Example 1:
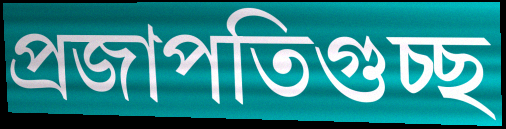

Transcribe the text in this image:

প্রজাপতিগুচ্ছ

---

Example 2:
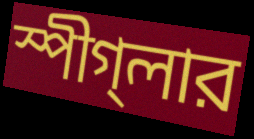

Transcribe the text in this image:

স্পীগ্‌লার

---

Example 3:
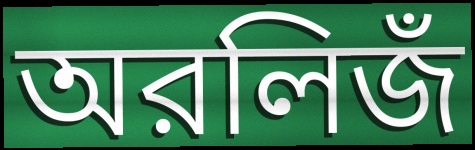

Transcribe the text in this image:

অরলিজঁ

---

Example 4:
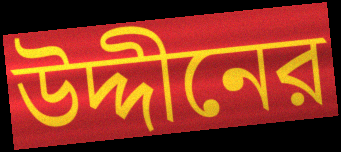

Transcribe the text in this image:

উদ্দীনের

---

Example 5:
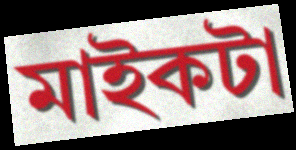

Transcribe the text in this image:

মাইকটা